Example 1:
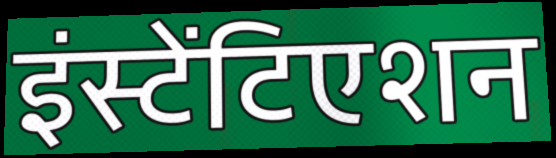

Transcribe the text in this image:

इंस्टेंटिएशन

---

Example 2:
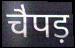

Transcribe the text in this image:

चैपड़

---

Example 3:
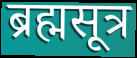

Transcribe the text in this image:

ब्रह्मसूत्र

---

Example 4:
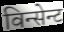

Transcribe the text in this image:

विन्सेन्ट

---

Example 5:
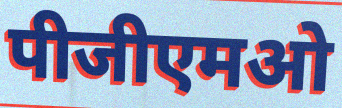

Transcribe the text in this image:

पीजीएमओ